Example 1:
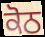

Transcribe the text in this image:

ਕੋਠ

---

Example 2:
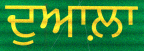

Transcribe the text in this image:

ਦੁਆਲ਼ਾ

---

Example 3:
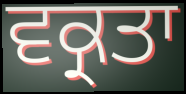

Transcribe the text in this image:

ਵਕ੍ਰਤਾ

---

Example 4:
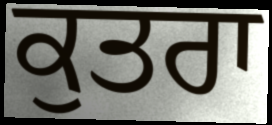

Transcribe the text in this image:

ਕੁਤਰਾ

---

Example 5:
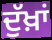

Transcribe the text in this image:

ਦੁੱਖ਼ਾਂ